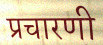
प्रचारणी